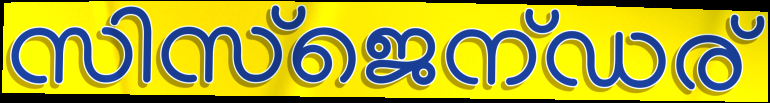
സിസ്ജെന്ഡര്